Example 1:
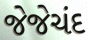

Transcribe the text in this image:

જેજેચંદ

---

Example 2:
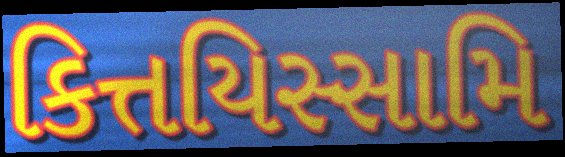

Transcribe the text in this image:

કિત્તયિસ્સામિ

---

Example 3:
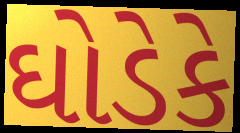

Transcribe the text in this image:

ઘોડેકે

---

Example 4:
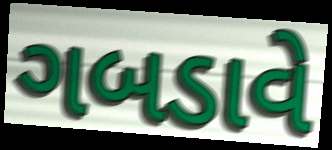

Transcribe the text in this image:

ગબડાવે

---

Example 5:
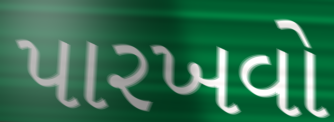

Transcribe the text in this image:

પારખવો